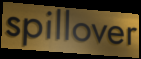
spillover